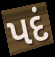
પદં